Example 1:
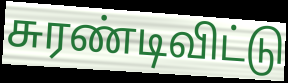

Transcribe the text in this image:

சுரண்டிவிட்டு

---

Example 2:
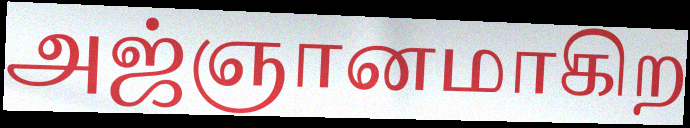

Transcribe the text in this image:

அஜ்ஞானமாகிற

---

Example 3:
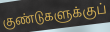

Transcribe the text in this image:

குண்டுகளுக்குப்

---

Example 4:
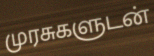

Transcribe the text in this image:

முரசுகளுடன்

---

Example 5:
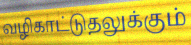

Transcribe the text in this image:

வழிகாட்டுதலுக்கும்